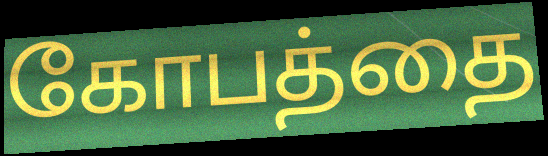
கோபத்தை